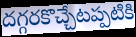
దగ్గరకొచ్చేటప్పటికి